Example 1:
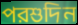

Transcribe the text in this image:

পরশুদিন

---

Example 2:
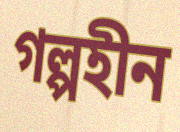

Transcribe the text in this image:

গল্পহীন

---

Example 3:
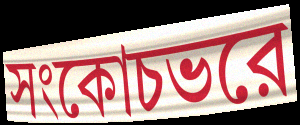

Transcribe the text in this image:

সংকোচভরে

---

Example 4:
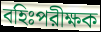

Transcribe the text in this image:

বহিঃপরীক্ষক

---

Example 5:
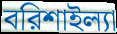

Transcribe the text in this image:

বরিশাইল্যা